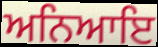
ਅਨਿਆਇ